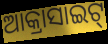
ଆକ୍ରାସାଇଟ୍